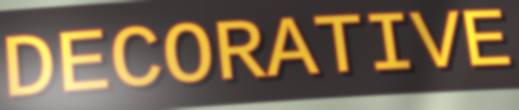
DECORATIVE